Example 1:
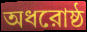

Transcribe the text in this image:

অধরোষ্ঠ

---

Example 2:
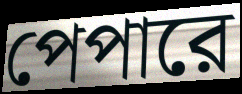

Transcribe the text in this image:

পেপারে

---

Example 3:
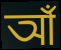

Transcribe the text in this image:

আঁ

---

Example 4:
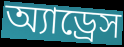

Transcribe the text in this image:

অ্যাড্রেস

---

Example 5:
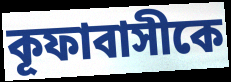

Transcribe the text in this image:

কূফাবাসীকে